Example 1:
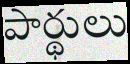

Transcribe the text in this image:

పార్థులు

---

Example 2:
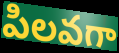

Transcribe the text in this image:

పిలవగా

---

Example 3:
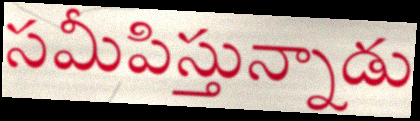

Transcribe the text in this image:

సమీపిస్తున్నాడు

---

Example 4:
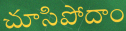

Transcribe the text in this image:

చూసిపోదాం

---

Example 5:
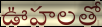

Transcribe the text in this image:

ఊహలతో